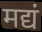
मद्यं